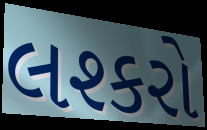
લશ્કરો